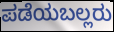
ಪಡೆಯಬಲ್ಲರು